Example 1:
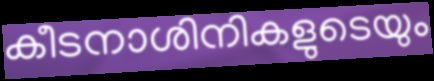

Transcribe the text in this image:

കീടനാശിനികളുടെയും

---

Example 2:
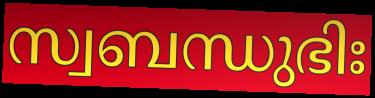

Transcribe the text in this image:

സ്വബന്ധുഭിഃ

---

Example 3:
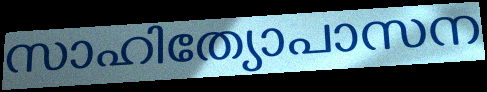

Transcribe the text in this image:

സാഹിത്യോപാസന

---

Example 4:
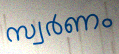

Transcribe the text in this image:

സ്വർണം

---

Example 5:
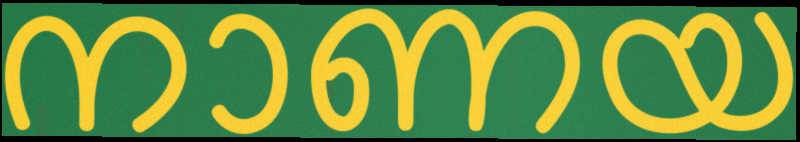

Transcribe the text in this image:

നാണയ